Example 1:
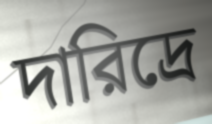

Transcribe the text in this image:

দারিদ্রে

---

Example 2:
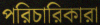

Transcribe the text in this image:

পরিচারিকারা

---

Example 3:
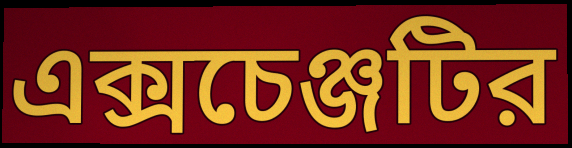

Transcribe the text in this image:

এক্সচেঞ্জটির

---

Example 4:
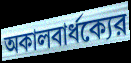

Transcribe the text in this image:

অকালবার্ধক্যের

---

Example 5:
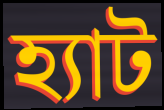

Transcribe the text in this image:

হ্যাট